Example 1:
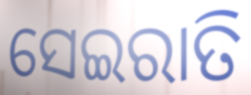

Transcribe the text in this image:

ସେଇରାତି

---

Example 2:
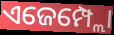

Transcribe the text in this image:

ଏଜେମ୍ପ୍ଲୋ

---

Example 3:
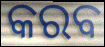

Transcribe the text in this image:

କରବ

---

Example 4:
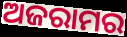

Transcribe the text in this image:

ଅଜରାମର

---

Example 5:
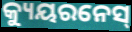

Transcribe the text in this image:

କ୍ୟୁୟରନେସ୍